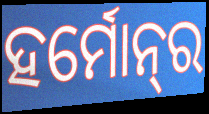
ହର୍ମୋନ୍‌ର